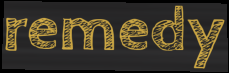
remedy